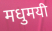
मधुमयी